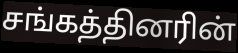
சங்கத்தினரின்